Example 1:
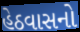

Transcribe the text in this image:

હેઠવાસનો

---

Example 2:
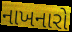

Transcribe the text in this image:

નાખનારો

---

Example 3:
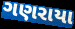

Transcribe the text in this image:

ગણરાયા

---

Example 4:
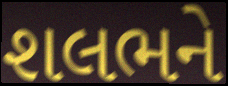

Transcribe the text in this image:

શલભને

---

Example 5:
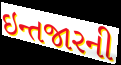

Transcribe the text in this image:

ઇન્તજારની